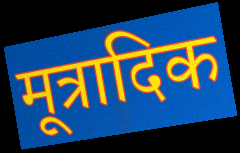
मूत्रादिक